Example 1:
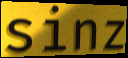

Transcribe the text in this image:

sinz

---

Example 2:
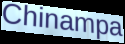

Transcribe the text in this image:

Chinampa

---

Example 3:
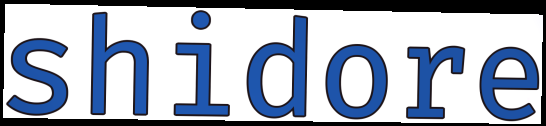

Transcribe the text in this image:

shidore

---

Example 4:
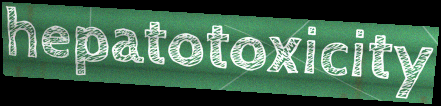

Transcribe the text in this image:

hepatotoxicity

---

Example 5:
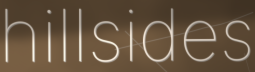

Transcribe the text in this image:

hillsides